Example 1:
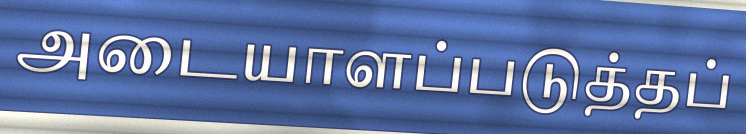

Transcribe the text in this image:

அடையாளப்படுத்தப்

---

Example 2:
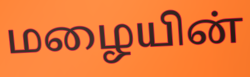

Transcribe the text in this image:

மழையின்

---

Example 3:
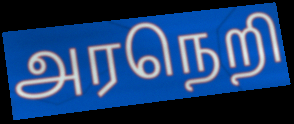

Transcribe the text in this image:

அரநெறி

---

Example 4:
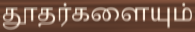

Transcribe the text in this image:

தூதர்களையும்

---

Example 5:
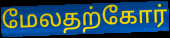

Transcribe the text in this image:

மேலதற்கோர்